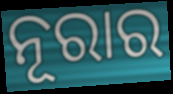
ନୂରାର